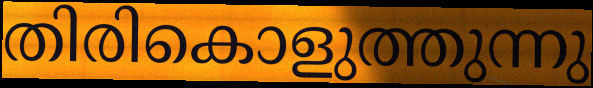
തിരികൊളുത്തുന്നു